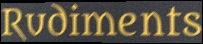
Rudiments